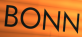
BONN